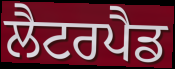
ਲੈਟਰਪੈਡ